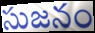
సుజనం